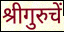
श्रीगुरुचें